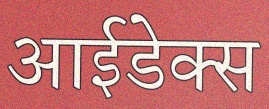
आईडेक्स